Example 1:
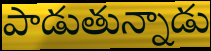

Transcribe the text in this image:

పాడుతున్నాడు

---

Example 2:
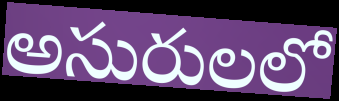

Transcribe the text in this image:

అసురులలో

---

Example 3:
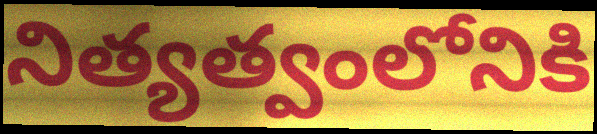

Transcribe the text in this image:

నిత్యత్వంలోనికి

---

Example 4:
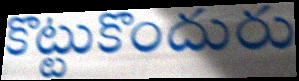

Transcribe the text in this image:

కొట్టుకొందురు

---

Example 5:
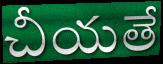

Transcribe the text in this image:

చీయతే